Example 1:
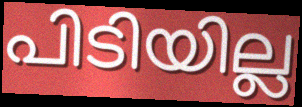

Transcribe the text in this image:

പിടിയില്ല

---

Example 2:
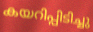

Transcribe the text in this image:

കയറിപ്പിടിച്ചു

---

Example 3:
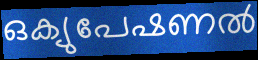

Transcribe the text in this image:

ഒക്യുപേഷണൽ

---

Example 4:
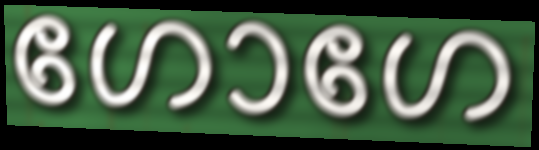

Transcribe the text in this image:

ഗോഗേ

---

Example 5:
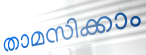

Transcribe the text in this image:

താമസിക്കാം